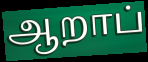
ஆறாப்